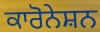
ਕਾਰੋਨੇਸ਼ਨ